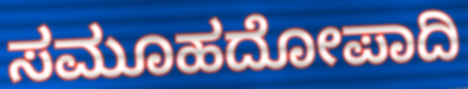
ಸಮೂಹದೋಪಾದಿ